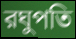
রঘুপতি